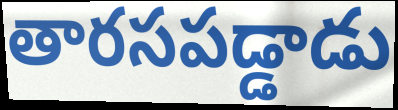
తారసపడ్డాడు